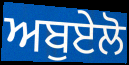
ਅਬੁਏਲੋ